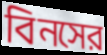
বিনসের